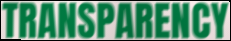
TRANSPARENCY